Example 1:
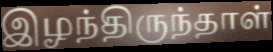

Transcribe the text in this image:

இழந்திருந்தாள்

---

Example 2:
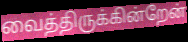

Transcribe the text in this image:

வைத்திருக்கின்றேன்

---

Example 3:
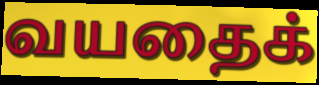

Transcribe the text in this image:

வயதைக்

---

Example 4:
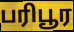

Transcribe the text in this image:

பரிபூர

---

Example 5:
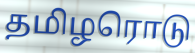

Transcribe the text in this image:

தமிழரொடு